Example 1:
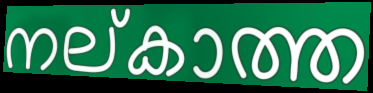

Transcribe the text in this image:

നല്കാത്ത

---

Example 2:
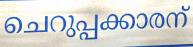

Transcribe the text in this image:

ചെറുപ്പക്കാരന്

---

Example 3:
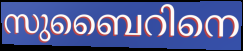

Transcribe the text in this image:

സുബൈറിനെ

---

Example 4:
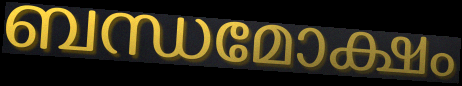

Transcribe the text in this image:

ബന്ധമോക്ഷം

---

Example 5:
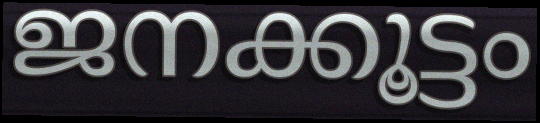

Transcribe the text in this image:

ജനക്കൂട്ടം